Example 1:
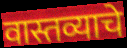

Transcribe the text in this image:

वास्तव्याचे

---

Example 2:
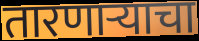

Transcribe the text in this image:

तारणाऱ्याचा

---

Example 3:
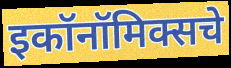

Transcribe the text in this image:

इकॉनॉमिक्सचे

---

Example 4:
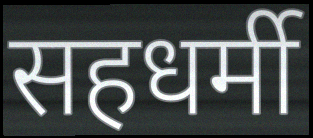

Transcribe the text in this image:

सहधर्मी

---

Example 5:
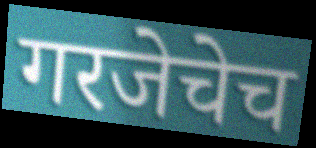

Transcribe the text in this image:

गरजेचेच